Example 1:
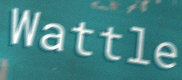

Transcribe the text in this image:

Wattle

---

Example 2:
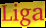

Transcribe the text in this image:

Liga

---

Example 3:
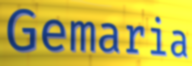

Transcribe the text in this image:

Gemaria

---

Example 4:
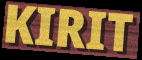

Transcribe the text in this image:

KIRIT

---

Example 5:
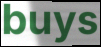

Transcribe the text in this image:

buys